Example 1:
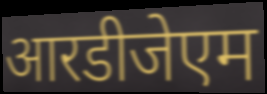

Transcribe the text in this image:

आरडीजेएम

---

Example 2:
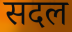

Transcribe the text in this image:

सदल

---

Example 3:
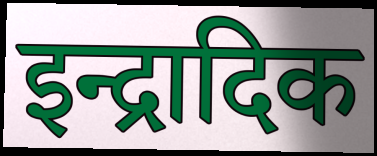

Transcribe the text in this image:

इन्द्रादिक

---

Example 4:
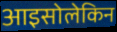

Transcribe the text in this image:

आइसोलेकिन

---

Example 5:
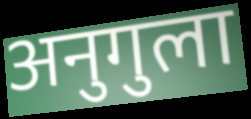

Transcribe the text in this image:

अनुगुला